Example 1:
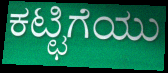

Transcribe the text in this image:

ಕಟ್ಟಿಗೆಯು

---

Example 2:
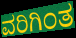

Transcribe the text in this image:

ವರಿಗಿಂತ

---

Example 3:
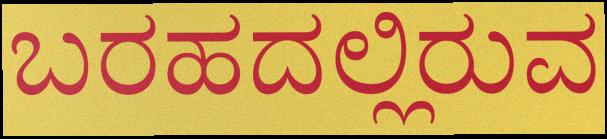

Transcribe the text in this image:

ಬರಹದಲ್ಲಿರುವ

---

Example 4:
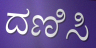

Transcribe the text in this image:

ದಣಿಸಿ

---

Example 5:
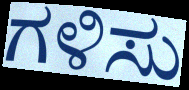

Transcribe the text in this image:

ಗಳಿಸು